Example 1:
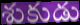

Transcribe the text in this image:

శుకుడు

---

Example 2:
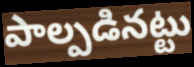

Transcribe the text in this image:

పాల్పడినట్టు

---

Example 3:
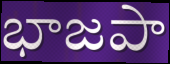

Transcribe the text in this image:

భాజపా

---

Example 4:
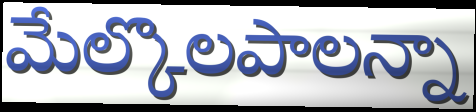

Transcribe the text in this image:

మేల్కొలపాలన్నా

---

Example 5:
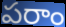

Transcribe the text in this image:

పరాం